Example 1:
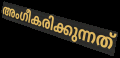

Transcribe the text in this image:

അംഗീകരിക്കുന്നത്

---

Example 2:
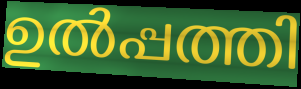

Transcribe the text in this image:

ഉൽപ്പത്തി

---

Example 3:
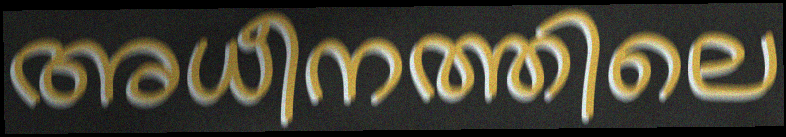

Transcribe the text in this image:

അധീനത്തിലെ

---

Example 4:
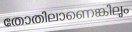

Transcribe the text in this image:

തോതിലാണെങ്കിലും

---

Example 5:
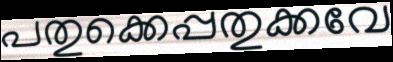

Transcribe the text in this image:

പതുക്കെപ്പതുക്കവേ